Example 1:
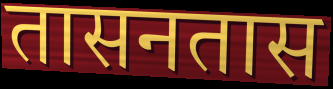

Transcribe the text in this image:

तासनतास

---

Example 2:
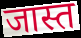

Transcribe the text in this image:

जास्त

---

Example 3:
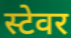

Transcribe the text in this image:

स्टेवर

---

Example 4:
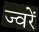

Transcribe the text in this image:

ज्वरें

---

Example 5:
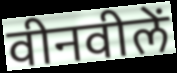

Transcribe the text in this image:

वीनवीलें